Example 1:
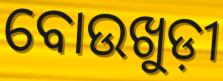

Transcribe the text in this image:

ବୋଉଖୁଡ଼ୀ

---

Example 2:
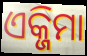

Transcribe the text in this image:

ଏକ୍ଜିମା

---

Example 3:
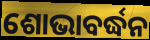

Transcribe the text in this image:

ଶୋଭାବର୍ଦ୍ଧନ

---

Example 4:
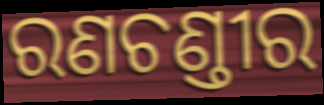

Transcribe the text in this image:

ରଣଚଣ୍ଡୀର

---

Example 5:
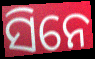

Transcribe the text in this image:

ସିନେ